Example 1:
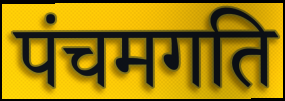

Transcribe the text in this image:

पंचमगति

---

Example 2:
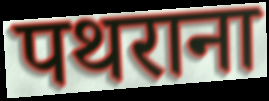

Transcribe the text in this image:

पथराना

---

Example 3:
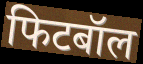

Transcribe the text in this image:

फिटबॉल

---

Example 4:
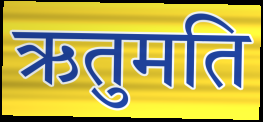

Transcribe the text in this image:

ऋतुमति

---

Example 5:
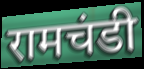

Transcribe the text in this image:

रामचंडी